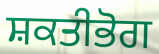
ਸ਼ਕਤੀਭੋਗ